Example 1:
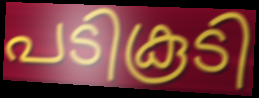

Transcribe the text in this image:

പടികൂടി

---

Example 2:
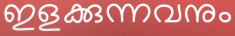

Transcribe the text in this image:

ഇളക്കുന്നവനും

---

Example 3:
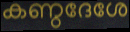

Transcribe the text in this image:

കണ്ഠദേശേ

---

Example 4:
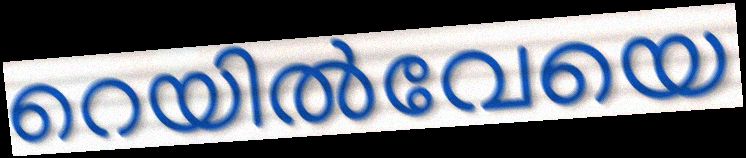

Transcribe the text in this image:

റെയിൽവേയെ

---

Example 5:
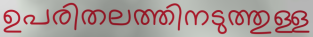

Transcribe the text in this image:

ഉപരിതലത്തിനടുത്തുള്ള